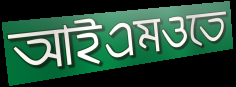
আইএমওতে